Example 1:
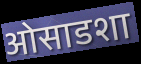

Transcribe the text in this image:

ओसाडशा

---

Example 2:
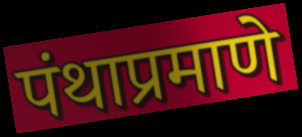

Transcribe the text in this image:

पंथाप्रमाणे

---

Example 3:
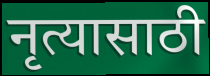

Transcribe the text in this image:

नृत्यासाठी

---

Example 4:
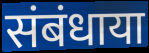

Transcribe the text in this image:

संबंधाया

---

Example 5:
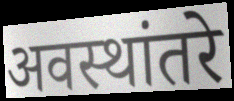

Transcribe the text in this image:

अवस्थांतरे